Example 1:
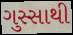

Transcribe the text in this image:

ગુસ્સાથી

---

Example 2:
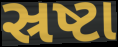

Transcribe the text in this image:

સ્રષ્ટા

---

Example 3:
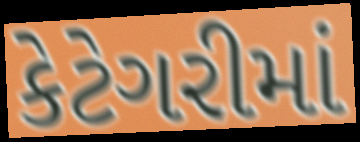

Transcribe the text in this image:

કેટેગરીમાં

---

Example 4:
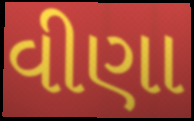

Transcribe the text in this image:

વીણા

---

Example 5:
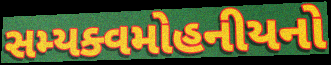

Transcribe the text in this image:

સમ્યક્વમોહનીયનો